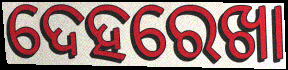
ଦେହରେଖା